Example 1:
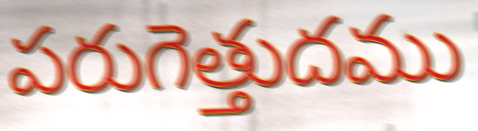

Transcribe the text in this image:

పరుగెత్తుదము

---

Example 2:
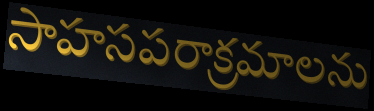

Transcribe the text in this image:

సాహసపరాక్రమాలను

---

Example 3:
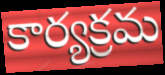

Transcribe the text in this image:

కార్యక్రమ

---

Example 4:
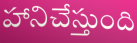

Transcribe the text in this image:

హానిచేస్తుంది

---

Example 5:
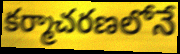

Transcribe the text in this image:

కర్మాచరణలోనే